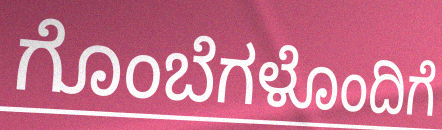
ಗೊಂಬೆಗಳೊಂದಿಗೆ